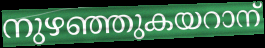
നുഴഞ്ഞുകയറാന്